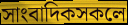
সাংবাদিকসকলে